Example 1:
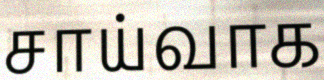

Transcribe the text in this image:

சாய்வாக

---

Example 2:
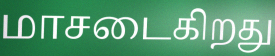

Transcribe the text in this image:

மாசடைகிறது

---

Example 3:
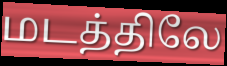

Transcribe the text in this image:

மடத்திலே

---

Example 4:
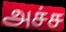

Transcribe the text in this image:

அச்ச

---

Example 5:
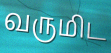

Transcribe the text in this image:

வருமிட